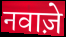
नवाज़े